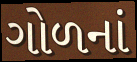
ગોળનાં